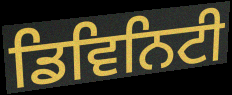
ਡਿਵਿਨਿਟੀ